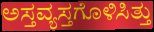
ಅಸ್ತವ್ಯಸ್ತಗೊಳಿಸಿತ್ತು